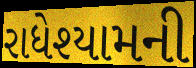
રાધેશ્યામની